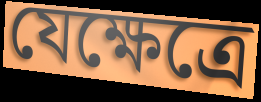
যেক্ষেত্রে